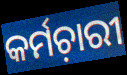
କର୍ମଚ଼ାରୀ